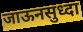
जाऊनसुध्दा